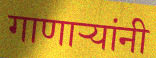
गाणाऱ्यांनी